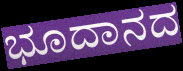
ಭೂದಾನದ